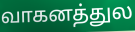
வாகனத்துல